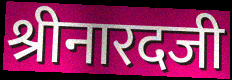
श्रीनारदजी